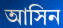
আসিন